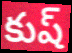
కుష్